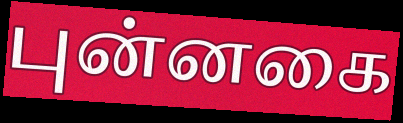
புன்னகை